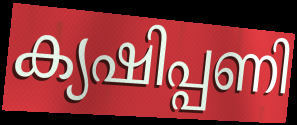
ക്യഷിപ്പണി